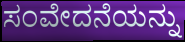
ಸಂವೇದನೆಯನ್ನು